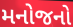
મનોજનો